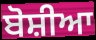
ਬੋਸ਼ੀਆ